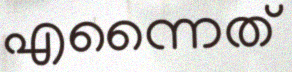
എന്നൈത്